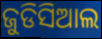
ଜୁଡିସିଆଲ